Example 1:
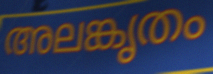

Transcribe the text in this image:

അലങ്കൃതം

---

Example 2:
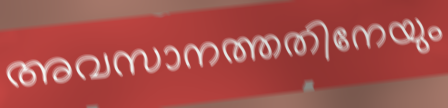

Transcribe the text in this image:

അവസാനത്തതിനേയും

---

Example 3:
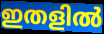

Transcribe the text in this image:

ഇതളിൽ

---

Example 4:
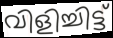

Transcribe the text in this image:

വിളിച്ചിട്ട്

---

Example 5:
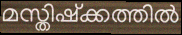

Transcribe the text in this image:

മസ്തിഷ്ക്കത്തിൽ